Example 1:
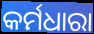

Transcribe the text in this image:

କର୍ମଧାରା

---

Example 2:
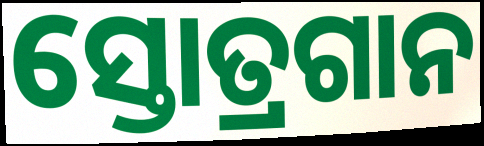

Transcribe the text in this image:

ସ୍ତୋତ୍ରଗାନ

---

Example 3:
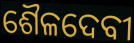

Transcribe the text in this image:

ଶୈଳଦେବୀ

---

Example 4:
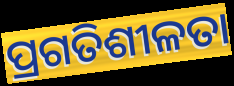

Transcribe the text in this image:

ପ୍ରଗତିଶୀଳତା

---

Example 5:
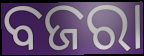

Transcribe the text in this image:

ବଜରା